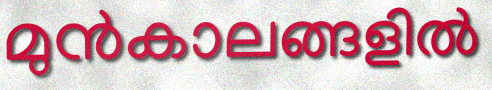
മുൻകാലങ്ങളിൽ